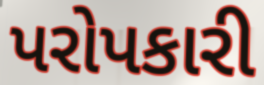
પરોપકારી